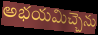
అభయమిచ్చెను